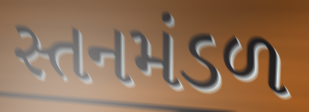
સ્તનમંડળ